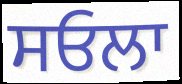
ਸਓਲਾ